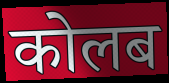
कोलब